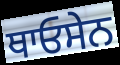
ਥਾਓਸੇਨ